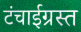
टंचाईग्रस्त